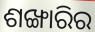
ଶଙ୍ଖାରିର